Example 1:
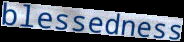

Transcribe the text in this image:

blessedness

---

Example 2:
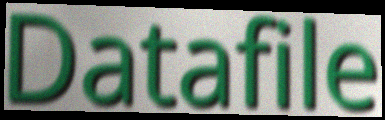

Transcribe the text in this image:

Datafile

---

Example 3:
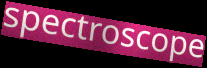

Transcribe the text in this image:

spectroscope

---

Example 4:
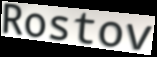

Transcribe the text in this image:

Rostov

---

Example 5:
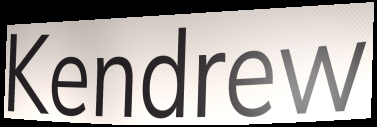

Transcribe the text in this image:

Kendrew